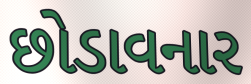
છોડાવનાર